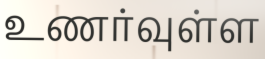
உணர்வுள்ள